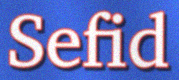
Sefid